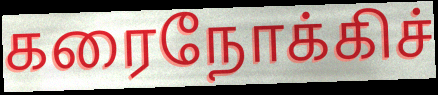
கரைநோக்கிச்